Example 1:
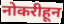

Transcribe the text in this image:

नोकरीहून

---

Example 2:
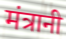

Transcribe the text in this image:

मंत्रानी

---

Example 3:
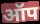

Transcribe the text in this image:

ऑप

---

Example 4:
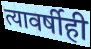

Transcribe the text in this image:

त्यावर्षीही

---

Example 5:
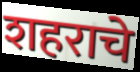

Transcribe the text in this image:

शहराचे